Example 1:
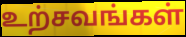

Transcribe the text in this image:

உற்சவங்கள்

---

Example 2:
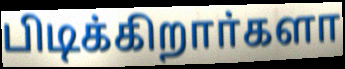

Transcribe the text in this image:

பிடிக்கிறார்களா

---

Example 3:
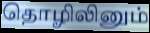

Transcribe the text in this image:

தொழிலினும்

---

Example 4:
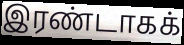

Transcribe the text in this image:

இரண்டாகக்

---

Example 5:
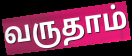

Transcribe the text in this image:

வருதாம்